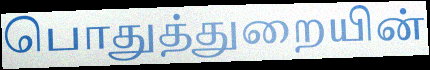
பொதுத்துறையின்